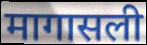
मागासली